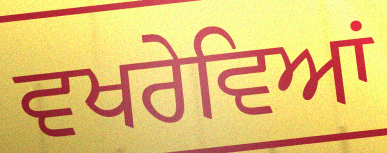
ਵਖਰੇਵਿਆਂ